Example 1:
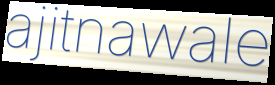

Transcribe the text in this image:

ajitnawale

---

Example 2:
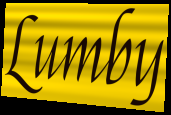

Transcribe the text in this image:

Lumby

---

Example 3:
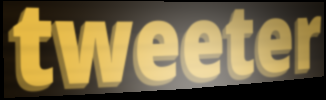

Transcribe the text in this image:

tweeter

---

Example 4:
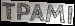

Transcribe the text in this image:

TPAMI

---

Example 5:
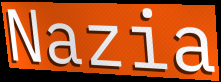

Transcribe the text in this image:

Nazia